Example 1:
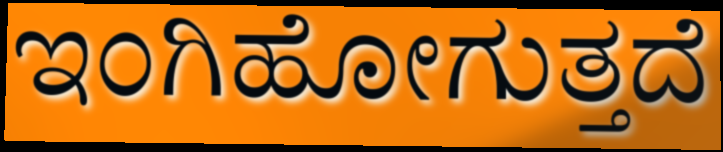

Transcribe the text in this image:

ಇಂಗಿಹೋಗುತ್ತದೆ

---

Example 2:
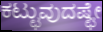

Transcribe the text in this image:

ಕಟ್ಟುವುದಷ್ಟೇ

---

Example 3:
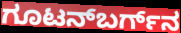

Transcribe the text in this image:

ಗೂಟನ್‌ಬರ್ಗ್‌ನ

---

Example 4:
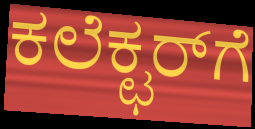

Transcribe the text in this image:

ಕಲೆಕ್ಟರ್‌ಗೆ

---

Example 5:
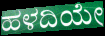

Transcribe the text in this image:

ಹಳದಿಯೇ